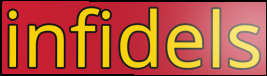
infidels